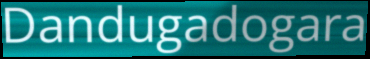
Dandugadogara